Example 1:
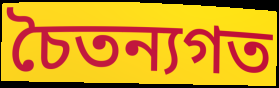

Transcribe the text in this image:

চৈতন্যগত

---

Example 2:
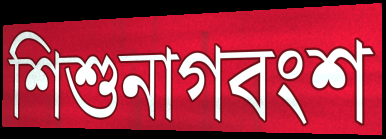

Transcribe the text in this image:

শিশুনাগবংশ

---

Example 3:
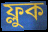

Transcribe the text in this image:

ফ্লুক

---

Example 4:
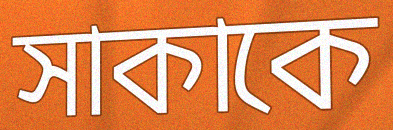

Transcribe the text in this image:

সাকাকে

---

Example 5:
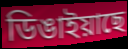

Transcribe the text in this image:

ডিঙাইয়াছে